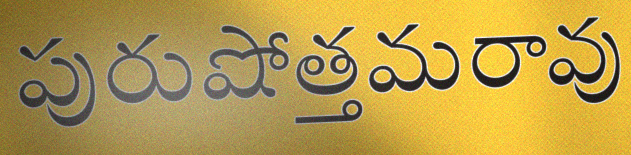
పురుషోత్తమరావు